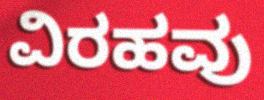
ವಿರಹವು